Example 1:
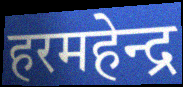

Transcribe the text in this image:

हरमहेन्द्र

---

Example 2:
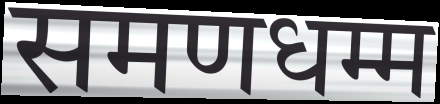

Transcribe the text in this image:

समणधम्म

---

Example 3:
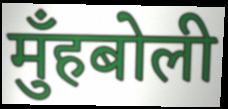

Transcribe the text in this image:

मुँहबोली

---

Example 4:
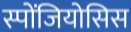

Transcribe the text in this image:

स्पोंजियोसिस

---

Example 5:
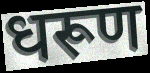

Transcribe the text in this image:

धरूण